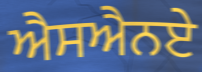
ਐਸਐਨਏ